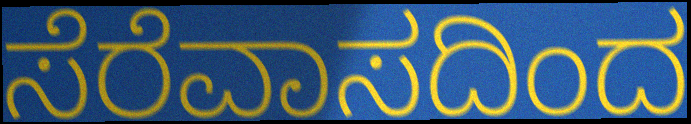
ಸೆರೆವಾಸದಿಂದ